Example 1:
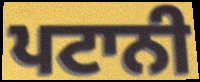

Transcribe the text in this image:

ਪਟਾਨੀ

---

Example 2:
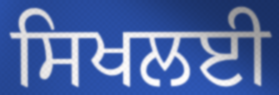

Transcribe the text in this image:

ਸਿਖਲਈ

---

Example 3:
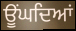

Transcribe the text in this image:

ਊਂਘਦਿਆਂ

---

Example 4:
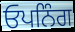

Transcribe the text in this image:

ਓਪਨਿੰਗ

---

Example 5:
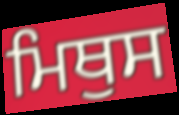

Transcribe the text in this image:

ਮਿਥੁਸ